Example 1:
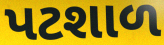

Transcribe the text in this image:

પટશાળ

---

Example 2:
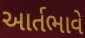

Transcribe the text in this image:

આર્તભાવે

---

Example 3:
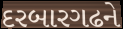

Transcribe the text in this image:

દરબારગઢને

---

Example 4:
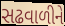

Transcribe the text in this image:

સઢવાળીને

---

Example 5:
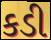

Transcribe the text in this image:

કડી